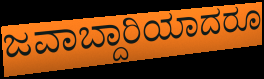
ಜವಾಬ್ದಾರಿಯಾದರೂ